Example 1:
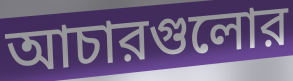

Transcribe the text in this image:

আচারগুলোর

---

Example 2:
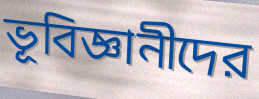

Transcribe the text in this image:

ভূবিজ্ঞানীদের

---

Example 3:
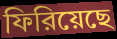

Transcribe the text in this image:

ফিরিয়েছে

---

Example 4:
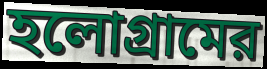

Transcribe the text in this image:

হলোগ্রামের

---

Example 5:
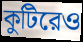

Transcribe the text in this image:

কুটিরেও